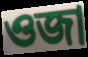
ওজা